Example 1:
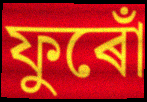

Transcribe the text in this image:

ফুৰোঁ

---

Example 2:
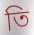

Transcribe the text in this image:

তি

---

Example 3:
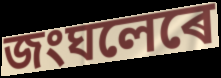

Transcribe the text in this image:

জংঘলেৰে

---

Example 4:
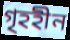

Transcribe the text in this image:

গৃহহীন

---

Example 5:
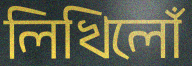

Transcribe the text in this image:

লিখিলোঁ